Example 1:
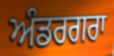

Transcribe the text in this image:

ਅੰਡਰਗਰਾ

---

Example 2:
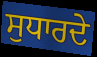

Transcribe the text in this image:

ਸੁਧਾਰਦੇ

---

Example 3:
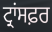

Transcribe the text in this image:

ਟ੍ਰਾਂਸਫ਼ਰ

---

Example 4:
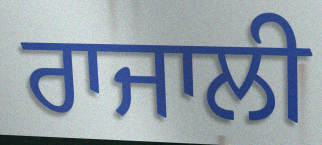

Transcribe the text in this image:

ਰਾਜਾਲੀ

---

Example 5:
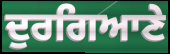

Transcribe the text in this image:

ਦੁਰਗਿਆਣੇ